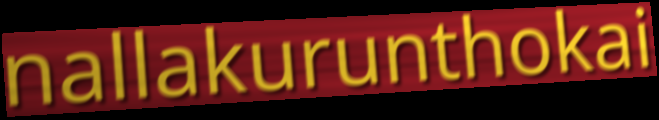
nallakurunthokai